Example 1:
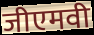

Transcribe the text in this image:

जीएमवी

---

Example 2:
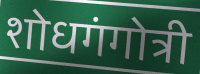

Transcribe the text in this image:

शोधगंगोत्री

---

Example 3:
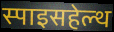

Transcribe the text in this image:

स्पाइसहेल्थ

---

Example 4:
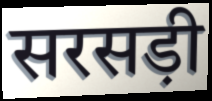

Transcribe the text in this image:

सरसड़ी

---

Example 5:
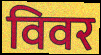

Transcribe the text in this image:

विवर